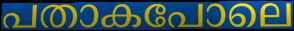
പതാകപോലെ